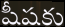
షీషకు